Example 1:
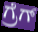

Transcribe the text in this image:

ಗ್ರೆಗ್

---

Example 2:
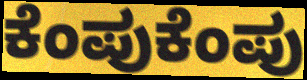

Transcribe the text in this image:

ಕೆಂಪುಕೆಂಪು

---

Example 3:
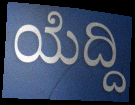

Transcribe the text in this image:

ಯೆದ್ದಿ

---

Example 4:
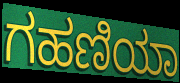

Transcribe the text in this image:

ಗಹಣಿಯಾ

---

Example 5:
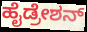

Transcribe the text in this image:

ಹೈಡ್ರೇಶನ್